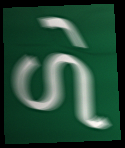
ળે